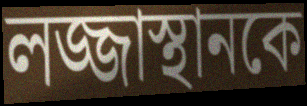
লজ্জাস্থানকে